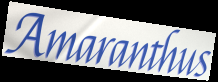
Amaranthus